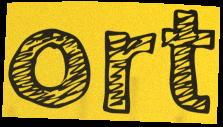
ort